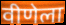
वीणेला